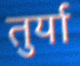
तुर्या